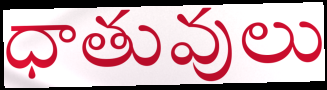
ధాతువులు